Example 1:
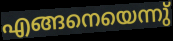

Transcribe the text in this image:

എങ്ങനെയെന്നു്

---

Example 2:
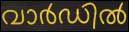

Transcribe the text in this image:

വാർഡിൽ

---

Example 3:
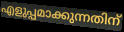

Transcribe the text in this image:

എളുപ്പമാക്കുന്നതിന്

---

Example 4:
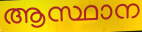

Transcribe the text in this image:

ആസ്ഥാന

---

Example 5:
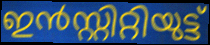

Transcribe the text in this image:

ഇൻസ്റ്റിറ്റിയുട്ട്